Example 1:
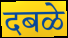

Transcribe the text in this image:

दबळे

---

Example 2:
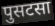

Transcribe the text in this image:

पुसटसा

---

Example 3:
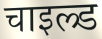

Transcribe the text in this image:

चाइल्ड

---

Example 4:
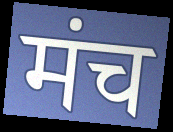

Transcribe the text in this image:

मंच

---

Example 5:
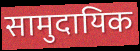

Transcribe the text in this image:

सामुदायिक